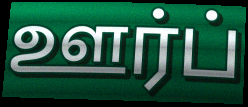
ஊர்ப்